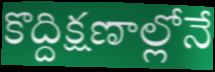
కొద్దిక్షణాల్లోనే